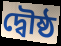
দ্বৌষ্ঠ